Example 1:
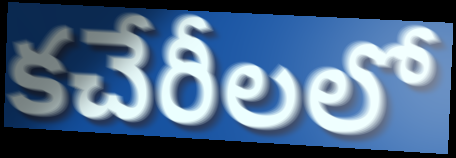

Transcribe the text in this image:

కచేరీలలో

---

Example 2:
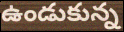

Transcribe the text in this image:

ఉండుకున్న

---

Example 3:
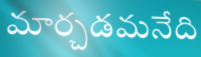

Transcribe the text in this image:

మార్చడమనేది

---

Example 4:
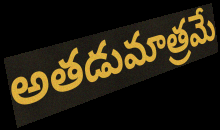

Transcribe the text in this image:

అతడుమాత్రమే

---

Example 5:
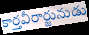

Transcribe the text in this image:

కార్తవీరార్జునుడు